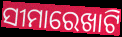
ସୀମାରେଖାଟି